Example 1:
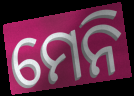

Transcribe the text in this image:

ମେନି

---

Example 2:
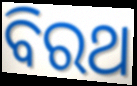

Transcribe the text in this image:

ବିରଥ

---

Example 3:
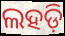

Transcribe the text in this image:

ଲହଡ଼ି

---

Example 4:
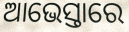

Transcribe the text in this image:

ଆଭେସ୍ତାରେ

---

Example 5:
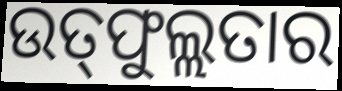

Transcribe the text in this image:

ଉତ୍‌ଫୁଲ୍ଲତାର